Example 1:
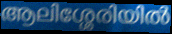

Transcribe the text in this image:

ആലിശ്ശേരിയിൽ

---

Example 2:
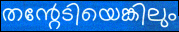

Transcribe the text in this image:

തന്റേടിയെങ്കിലും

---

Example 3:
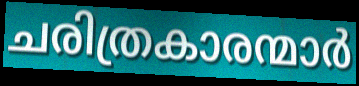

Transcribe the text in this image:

ചരിത്രകാരന്മാർ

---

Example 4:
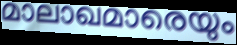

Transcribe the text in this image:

മാലാഖമാരെയും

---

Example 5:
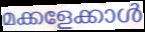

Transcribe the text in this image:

മക്കളേക്കാൾ